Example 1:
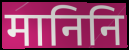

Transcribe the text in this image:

मानिनि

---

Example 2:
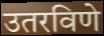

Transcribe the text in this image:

उतरविणे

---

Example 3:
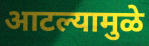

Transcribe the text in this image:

आटल्यामुळे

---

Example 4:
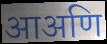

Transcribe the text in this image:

आअणि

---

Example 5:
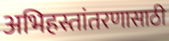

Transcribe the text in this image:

अभिहस्तांतरणासाठी